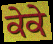
ਕੇਕੇ